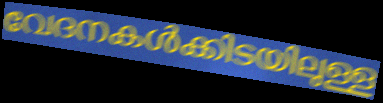
വേദനകൾക്കിടയിലുള്ള